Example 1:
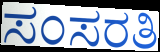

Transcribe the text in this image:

ಸಂಸರತಿ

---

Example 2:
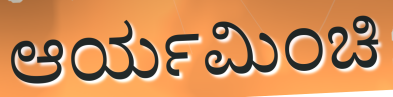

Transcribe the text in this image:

ಆರ್ಯಮಿಂಚಿ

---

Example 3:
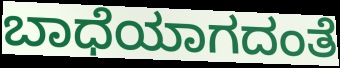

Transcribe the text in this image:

ಬಾಧೆಯಾಗದಂತೆ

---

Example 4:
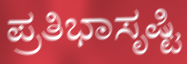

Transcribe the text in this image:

ಪ್ರತಿಭಾಸೃಷ್ಟಿ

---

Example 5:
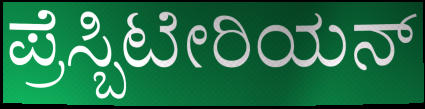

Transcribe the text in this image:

ಪ್ರೆಸ್ಬಿಟೇರಿಯನ್